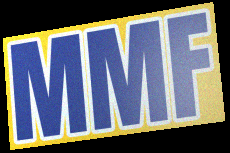
MMF